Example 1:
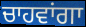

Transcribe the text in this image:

ਚਾਹਵਾਂਗਾ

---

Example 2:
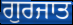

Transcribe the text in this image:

ਗੁਰਜਾਤ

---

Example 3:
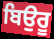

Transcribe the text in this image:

ਬਿਉਰੂ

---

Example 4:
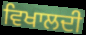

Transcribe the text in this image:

ਵਿਖਾਲਦੀ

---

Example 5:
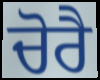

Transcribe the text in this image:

ਚੋਰੈ